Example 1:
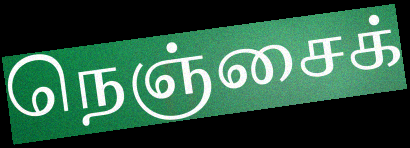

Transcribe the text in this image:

நெஞ்சைக்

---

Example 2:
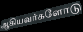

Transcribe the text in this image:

ஆகியவர்களோடு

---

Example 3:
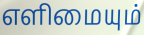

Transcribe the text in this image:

எளிமையும்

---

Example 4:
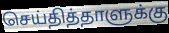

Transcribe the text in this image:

செய்தித்தாளுக்கு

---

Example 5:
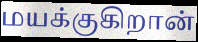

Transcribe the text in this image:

மயக்குகிறான்